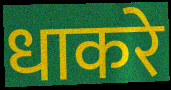
धाकरे